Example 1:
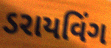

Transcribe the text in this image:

ડરાયવિંગ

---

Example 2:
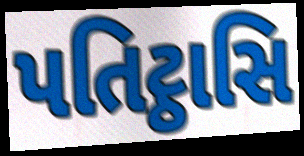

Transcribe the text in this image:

પતિટ્ઠાસિ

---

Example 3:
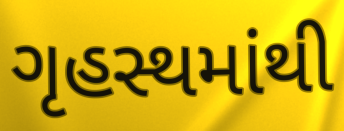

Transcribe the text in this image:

ગૃહસ્થમાંથી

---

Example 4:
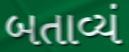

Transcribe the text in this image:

બતાવ્યં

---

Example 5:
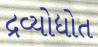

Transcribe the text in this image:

દ્રવ્યોદ્યોત